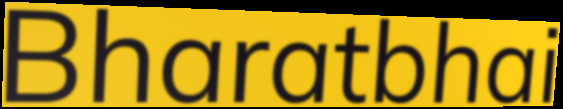
Bharatbhai